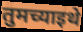
तुमच्याइथे